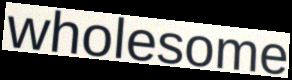
wholesome